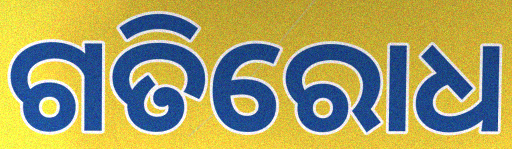
ଗତିରୋଧ